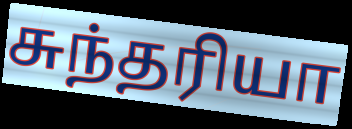
சுந்தரியா